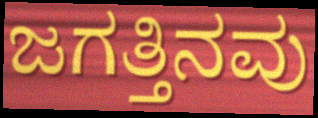
ಜಗತ್ತಿನವು